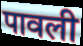
पावली